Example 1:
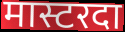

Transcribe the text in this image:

मास्टरदा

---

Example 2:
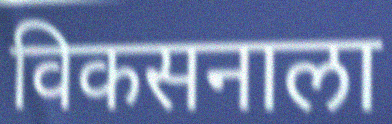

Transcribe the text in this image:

विकसनाला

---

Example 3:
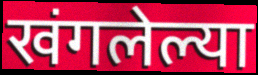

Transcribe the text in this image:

खंगलेल्या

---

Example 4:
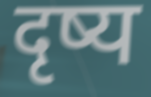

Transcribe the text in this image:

दृष्य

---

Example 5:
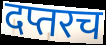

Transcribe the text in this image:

दप्तरच